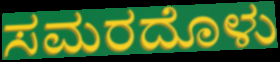
ಸಮರದೊಳು